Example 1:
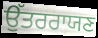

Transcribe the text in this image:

ਉੱਤਰਰਾਯਣ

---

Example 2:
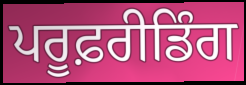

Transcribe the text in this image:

ਪਰੂਫ਼ਰੀਡਿੰਗ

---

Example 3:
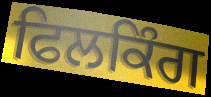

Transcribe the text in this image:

ਫਿਲਕਿੰਗ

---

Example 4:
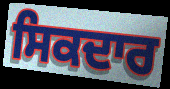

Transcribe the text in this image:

ਸਿਕਦਾਰ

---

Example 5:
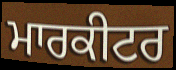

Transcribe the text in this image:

ਮਾਰਕੀਟਰ